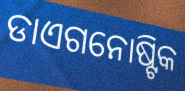
ଡାଏଗନୋଷ୍ଟିକ